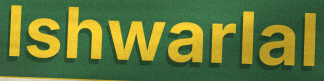
Ishwarlal